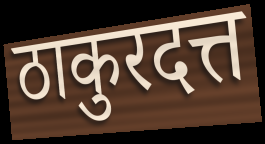
ठाकुरदत्त